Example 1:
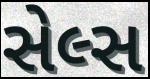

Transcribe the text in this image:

સેલ્સ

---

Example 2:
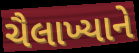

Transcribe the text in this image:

ચૈલાખ્યાને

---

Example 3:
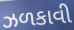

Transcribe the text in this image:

ઝળકાવી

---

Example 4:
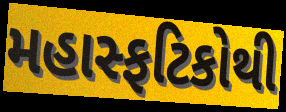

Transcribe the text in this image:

મહાસ્ફટિકોથી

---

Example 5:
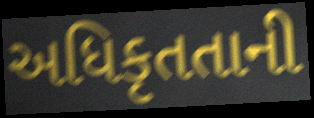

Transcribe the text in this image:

અધિકૃતતાની